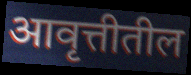
आवृत्तीतील